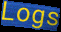
Logs